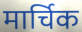
मार्चिक